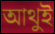
আথুই